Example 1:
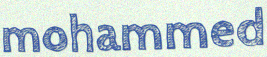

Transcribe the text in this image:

mohammed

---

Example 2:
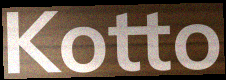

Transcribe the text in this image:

Kotto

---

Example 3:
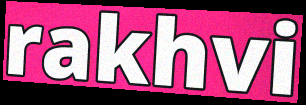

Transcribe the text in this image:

rakhvi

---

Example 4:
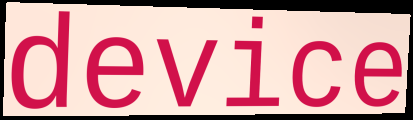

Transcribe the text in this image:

device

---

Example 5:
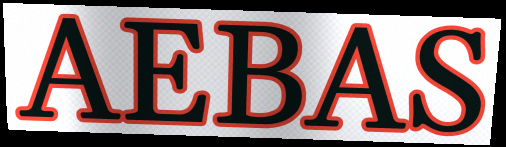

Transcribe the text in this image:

AEBAS